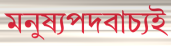
মনুষ্যপদবাচ্যই